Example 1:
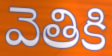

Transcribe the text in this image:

వెతికి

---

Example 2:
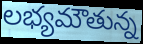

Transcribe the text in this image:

లభ్యమౌతున్న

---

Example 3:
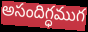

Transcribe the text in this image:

అసందిగ్ధముగ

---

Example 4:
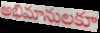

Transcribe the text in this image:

అభిమానులకూ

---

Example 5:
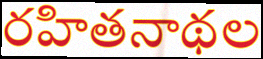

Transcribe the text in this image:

రహితనాథల